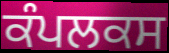
ਕੰਪਲਕਸ